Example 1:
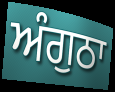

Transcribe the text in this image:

ਅੰਗੁਠਾ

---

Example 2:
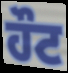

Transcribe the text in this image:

ਹੌਟ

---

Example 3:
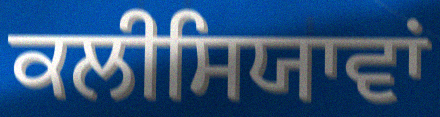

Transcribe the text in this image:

ਕਲੀਸਿਯਾਵਾਂ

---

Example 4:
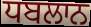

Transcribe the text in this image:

ਧਬਲਾਨ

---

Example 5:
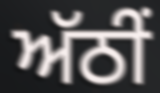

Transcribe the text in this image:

ਅੱਠੀਂ